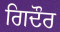
ਗਿਦੌਰ